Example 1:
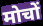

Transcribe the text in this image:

मोचों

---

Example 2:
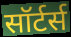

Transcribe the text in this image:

सॉर्टर्स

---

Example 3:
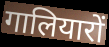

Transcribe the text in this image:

गालियारों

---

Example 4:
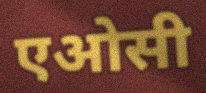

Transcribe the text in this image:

एओसी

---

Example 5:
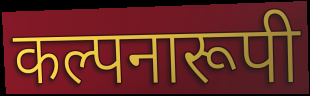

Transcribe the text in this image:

कल्पनारूपी